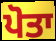
ਪੋਤਾ